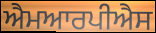
ਐਮਆਰਪੀਐਸ